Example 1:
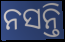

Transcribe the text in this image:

ନସନ୍ତି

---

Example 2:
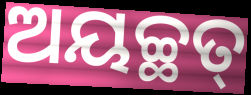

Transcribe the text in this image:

ଅୟଚ୍ଛତ୍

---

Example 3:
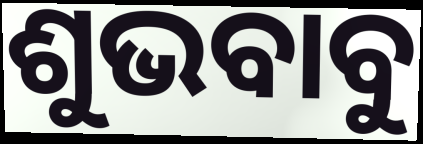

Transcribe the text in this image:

ଶୁଭବାବୁ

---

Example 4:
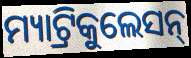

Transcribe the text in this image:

ମ୍ୟାଟ୍ରିକୁଲେସନ୍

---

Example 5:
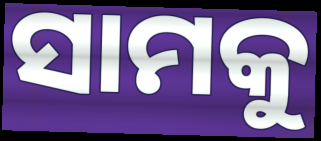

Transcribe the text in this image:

ସାମକୁ